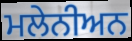
ਮਲੇਨੀਅਨ